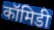
कॉमिडी